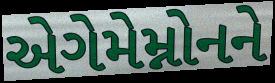
એગેમેમ્નોનને